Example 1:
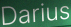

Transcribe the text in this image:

Darius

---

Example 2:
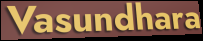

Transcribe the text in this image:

Vasundhara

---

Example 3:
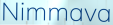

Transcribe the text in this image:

Nimmava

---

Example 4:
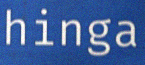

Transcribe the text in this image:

hinga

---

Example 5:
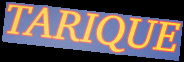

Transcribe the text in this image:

TARIQUE